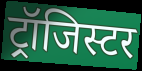
ट्रॉजिस्टर